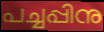
പച്ചപ്പിനു